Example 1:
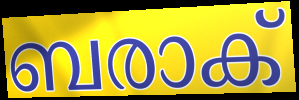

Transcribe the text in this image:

ബരാക്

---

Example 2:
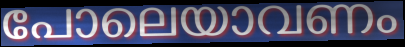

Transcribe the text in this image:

പോലെയാവണം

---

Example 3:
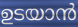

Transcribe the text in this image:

ഉടയാൻ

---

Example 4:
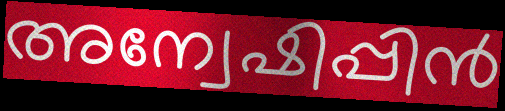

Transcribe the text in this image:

അന്വേഷിപ്പിൻ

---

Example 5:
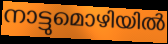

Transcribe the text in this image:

നാട്ടുമൊഴിയിൽ